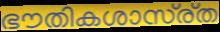
ഭൗതികശാസ്ര്ത